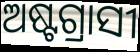
ଅଷ୍ଟଗ୍ରାସୀ